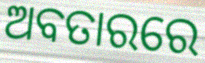
ଅବତାରରେ